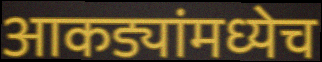
आकड्यांमध्येच